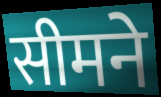
सीमने